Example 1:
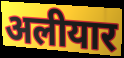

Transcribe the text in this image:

अलीयार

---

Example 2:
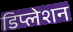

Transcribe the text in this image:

डिप्लेशन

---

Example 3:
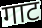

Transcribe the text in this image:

गाट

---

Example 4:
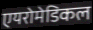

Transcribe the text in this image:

एयरोमेडिकल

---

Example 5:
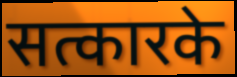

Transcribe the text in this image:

सत्कारके